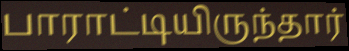
பாராட்டியிருந்தார்